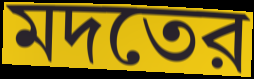
মদতের